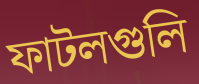
ফাটলগুলি